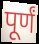
पूर्णं